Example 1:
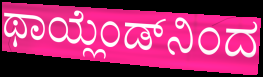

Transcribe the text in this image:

ಥಾಯ್ಲೆಂಡ್‌ನಿಂದ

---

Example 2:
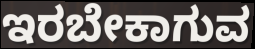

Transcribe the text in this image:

ಇರಬೇಕಾಗುವ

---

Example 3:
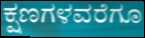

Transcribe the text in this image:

ಕ್ಷಣಗಳವರೆಗೂ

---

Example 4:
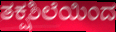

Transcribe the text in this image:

ತಕ್ಷಶಿಲೆಯಿಂದ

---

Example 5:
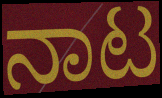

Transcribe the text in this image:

ನಾಟ